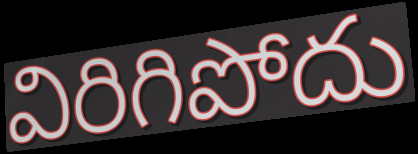
విరిగిపోదు